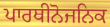
ਪਾਰਥੀਨੋਜਨਿਕ